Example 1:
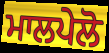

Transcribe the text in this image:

ਮਾਲਪੇਲੋ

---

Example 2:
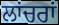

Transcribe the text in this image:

ਲਾਂਚਰਾਂ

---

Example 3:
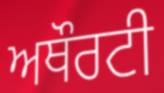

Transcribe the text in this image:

ਅਥੌਰਟੀ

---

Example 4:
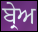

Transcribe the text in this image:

ਬ੍ਰੇਅ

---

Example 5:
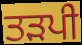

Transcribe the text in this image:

ਤੜਪੀ